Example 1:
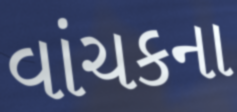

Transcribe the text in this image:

વાંચકના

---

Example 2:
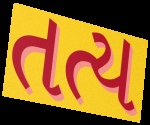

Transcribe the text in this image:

તત્ય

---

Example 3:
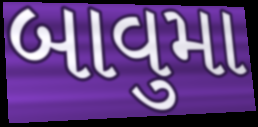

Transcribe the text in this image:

બાવુમા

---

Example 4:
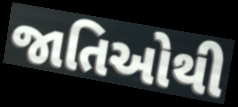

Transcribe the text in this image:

જાતિઓથી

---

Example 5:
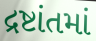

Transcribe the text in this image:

દ્રષ્ટાંતમાં